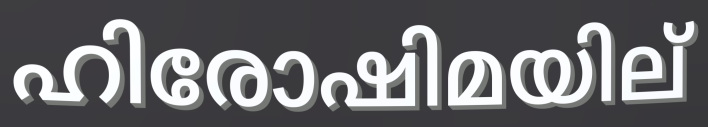
ഹിരോഷിമയില്